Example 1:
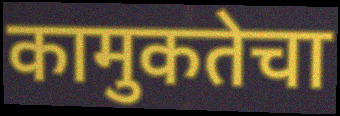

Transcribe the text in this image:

कामुकतेचा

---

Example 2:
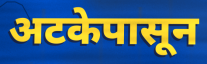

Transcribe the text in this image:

अटकेपासून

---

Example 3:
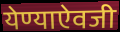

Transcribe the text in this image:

येण्याऐवजी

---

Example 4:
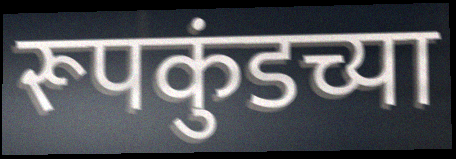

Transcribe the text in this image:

रूपकुंडच्या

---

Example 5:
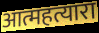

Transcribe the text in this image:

आत्महत्यारा